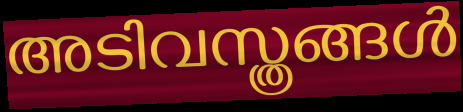
അടിവസ്ത്രങ്ങൾ